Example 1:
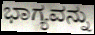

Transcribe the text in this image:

ಭಾಗ್ಯವನ್ನು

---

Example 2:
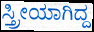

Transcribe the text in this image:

ಸ್ತ್ರೀಯಾಗಿದ್ದ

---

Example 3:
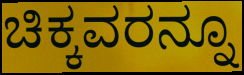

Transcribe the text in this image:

ಚಿಕ್ಕವರನ್ನೂ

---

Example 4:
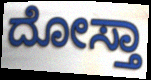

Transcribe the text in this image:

ದೋಸ್ತಾ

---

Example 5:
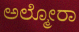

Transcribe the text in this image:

ಅಲ್ಮೋರಾ